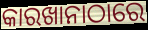
କାରଖାନାଠାରେ